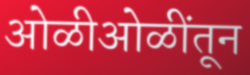
ओळीओळींतून